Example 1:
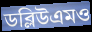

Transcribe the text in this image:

ডব্লিউএমও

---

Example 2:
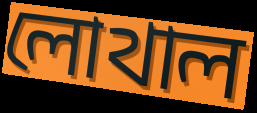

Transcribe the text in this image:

লোথাল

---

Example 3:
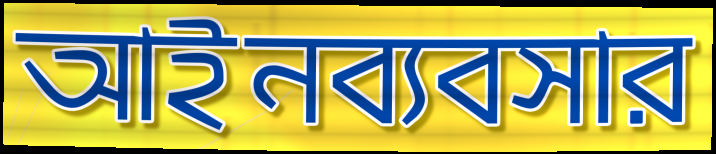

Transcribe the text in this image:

আইনব্যবসার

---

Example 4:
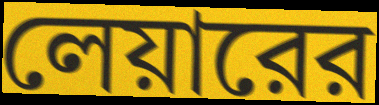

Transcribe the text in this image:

লেয়ারের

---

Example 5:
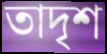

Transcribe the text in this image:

তাদৃশ